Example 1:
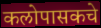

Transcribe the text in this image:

कलोपासकचे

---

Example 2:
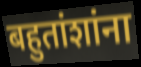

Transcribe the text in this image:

बहुतांशांना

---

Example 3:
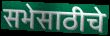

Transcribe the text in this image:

सभेसाठीचे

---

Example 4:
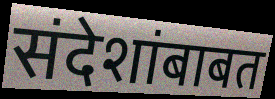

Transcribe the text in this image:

संदेशांबाबत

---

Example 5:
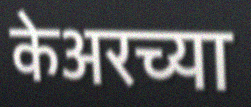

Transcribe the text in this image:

केअरच्या